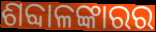
ଶବ୍ଦାଳଙ୍କାରର